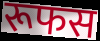
रूफस